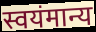
स्वयंमान्य